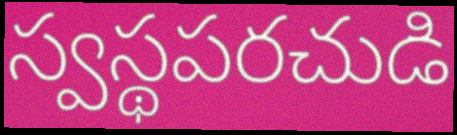
స్వస్థపరచుడి